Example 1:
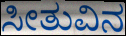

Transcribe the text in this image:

ಸೀತುವಿನ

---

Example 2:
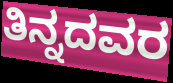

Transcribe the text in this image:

ತಿನ್ನದವರ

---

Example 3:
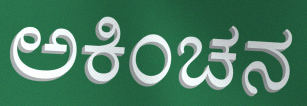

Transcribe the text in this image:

ಅಕಿಂಚನ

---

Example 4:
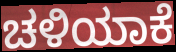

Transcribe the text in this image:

ಚಳಿಯಾಕೆ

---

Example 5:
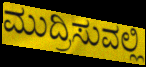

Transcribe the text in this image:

ಮುದ್ರಿಸುವಲ್ಲಿ